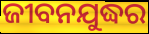
ଜୀବନଯୁଦ୍ଧର